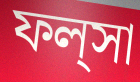
ফল্‌সা